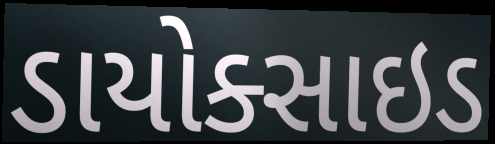
ડાયોક્સાઇડ